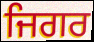
ਜਿਗਰ